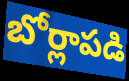
బోర్లాపడి